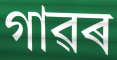
গাৱৰ